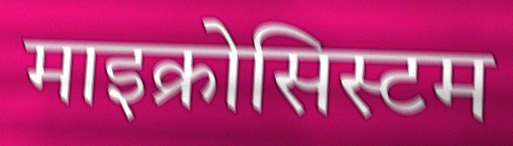
माइक्रोसिस्टम